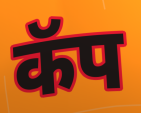
कॅप